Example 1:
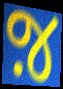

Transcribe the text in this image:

જ઼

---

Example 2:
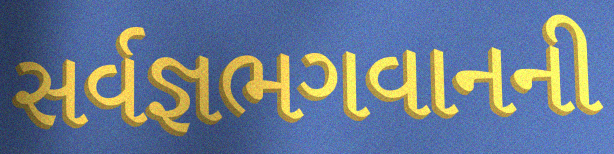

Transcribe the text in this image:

સર્વજ્ઞભગવાનની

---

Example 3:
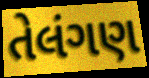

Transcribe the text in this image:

તેલંગણ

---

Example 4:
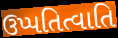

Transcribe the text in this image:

ઉપ્પતિત્વાતિ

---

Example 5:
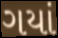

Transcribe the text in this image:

ગયાં